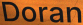
Doran